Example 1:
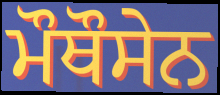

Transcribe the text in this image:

ਮੌਥੌਸੇਨ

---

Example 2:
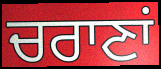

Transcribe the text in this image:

ਚਰਾਣਾਂ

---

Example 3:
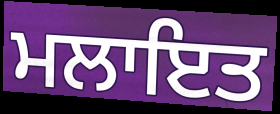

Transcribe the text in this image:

ਮਲਾਇਤ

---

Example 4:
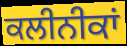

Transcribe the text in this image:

ਕਲੀਨੀਕਾਂ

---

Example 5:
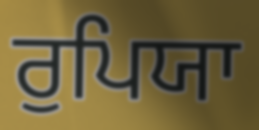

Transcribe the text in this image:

ਰੁਪਿਯਾ